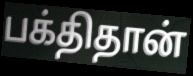
பக்திதான்